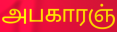
அபகாரஞ்